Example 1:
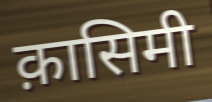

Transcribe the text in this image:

क़ासिमी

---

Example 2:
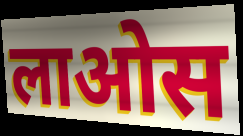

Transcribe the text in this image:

लाओस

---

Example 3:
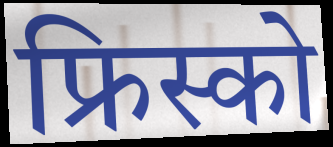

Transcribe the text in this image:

फ्रिस्को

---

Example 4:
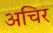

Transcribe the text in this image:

अचिर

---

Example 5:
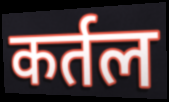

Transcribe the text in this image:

कर्तल